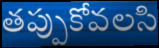
తప్పుకోవలసి